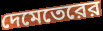
দেমেতেরের